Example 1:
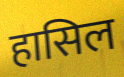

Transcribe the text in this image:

हासिल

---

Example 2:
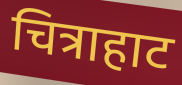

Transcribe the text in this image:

चित्राहाट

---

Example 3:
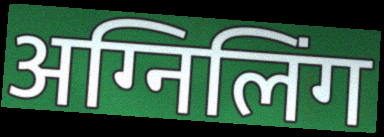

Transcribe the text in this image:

अग्निलिंग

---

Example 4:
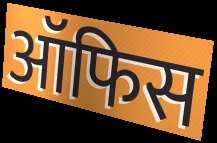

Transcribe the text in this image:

ऑफिस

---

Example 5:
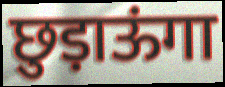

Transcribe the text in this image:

छुड़ाऊंगा